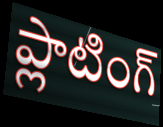
ప్లాటింగ్